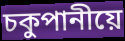
চকুপানীয়ে